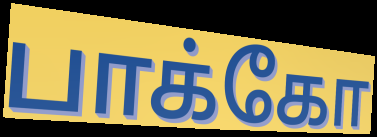
பாக்கோ